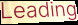
Leading